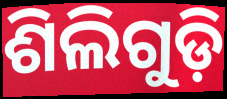
ଶିଲିଗୁଡ଼ି